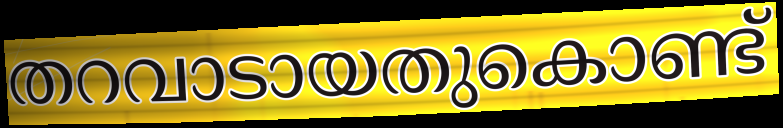
തറവാടായതുകൊണ്ട്